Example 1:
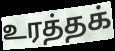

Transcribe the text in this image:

உரத்தக்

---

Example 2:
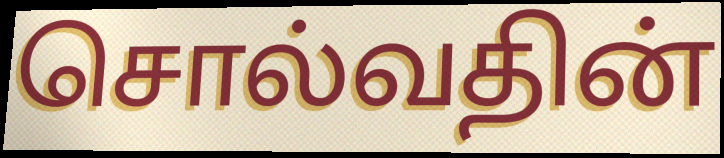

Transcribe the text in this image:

சொல்வதின்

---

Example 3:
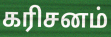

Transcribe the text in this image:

கரிசனம்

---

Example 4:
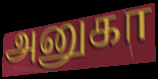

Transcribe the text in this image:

அனுகா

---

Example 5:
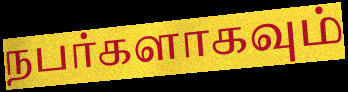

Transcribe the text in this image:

நபர்களாகவும்